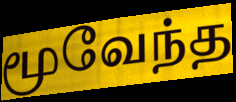
மூவேந்த